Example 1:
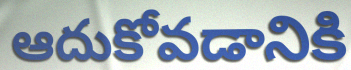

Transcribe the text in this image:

ఆదుకోవడానికి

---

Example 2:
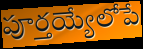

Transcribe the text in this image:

పూర్తయ్యేలోపే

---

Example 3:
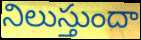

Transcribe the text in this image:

నిలుస్తుందా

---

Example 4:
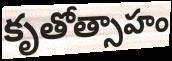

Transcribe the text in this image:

కృతోత్సాహం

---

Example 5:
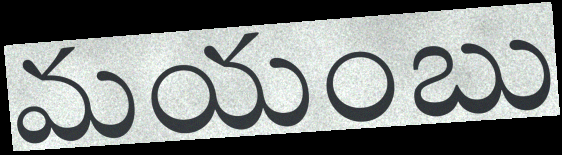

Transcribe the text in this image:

మయంబు